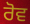
ਰੋਵ